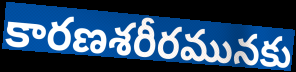
కారణశరీరమునకు